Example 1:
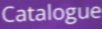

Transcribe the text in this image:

Catalogue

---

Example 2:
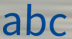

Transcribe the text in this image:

abc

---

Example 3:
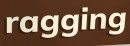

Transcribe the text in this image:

ragging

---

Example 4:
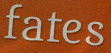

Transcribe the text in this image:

fates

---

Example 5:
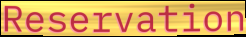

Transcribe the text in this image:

Reservation